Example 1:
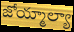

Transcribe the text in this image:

జోయ్మాల్యా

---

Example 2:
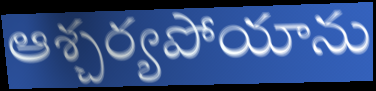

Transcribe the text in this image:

ఆశ్చర్యపోయాను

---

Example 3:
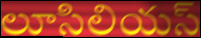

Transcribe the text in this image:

లూసిలియస్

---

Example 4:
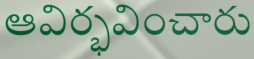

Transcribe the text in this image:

ఆవిర్భవించారు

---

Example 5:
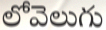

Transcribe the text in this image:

లోవెలుగు